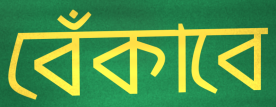
বেঁকাবে